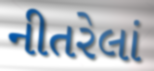
નીતરેલાં